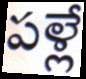
పళ్లే